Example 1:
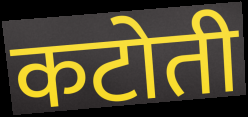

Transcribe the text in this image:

कटोती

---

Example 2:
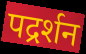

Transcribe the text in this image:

पद्रर्शन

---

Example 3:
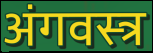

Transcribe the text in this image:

अंगवस्त्र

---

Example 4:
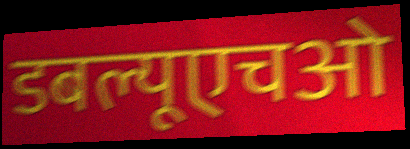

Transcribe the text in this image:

डबल्यूएचओ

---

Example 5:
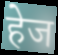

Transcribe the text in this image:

हेज